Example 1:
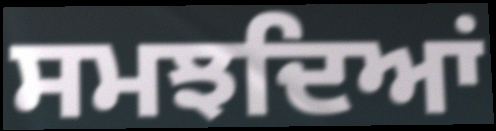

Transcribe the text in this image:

ਸਮਝਦਿਆਂ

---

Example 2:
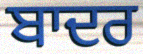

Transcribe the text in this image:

ਬਾਦਰ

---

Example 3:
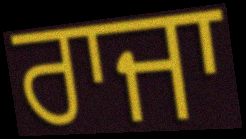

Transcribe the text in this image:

ਰਾਜਾ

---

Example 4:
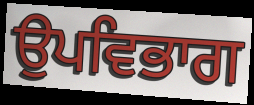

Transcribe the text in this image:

ਉਪਵਿਭਾਗ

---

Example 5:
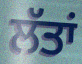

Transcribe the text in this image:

ਲੱਤਾਂ